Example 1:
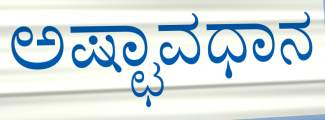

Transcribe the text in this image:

ಅಷ್ಟಾವಧಾನ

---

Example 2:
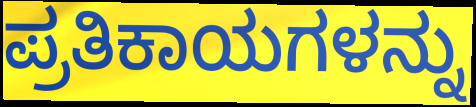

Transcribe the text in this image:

ಪ್ರತಿಕಾಯಗಳನ್ನು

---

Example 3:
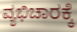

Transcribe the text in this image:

ವ್ಯಭಿಚಾರಕ್ಕೆ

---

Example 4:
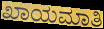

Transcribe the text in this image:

ಖಾಯಮಾತಿ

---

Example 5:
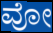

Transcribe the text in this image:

ವೋ